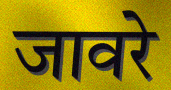
जावरे